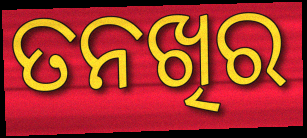
ତନଖିର